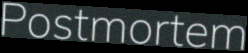
Postmortem